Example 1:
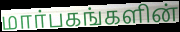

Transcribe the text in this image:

மார்பகங்களின்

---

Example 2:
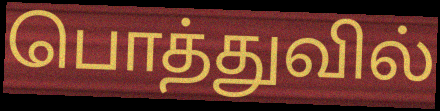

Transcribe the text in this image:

பொத்துவில்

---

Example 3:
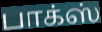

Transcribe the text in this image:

பாக்ஸ்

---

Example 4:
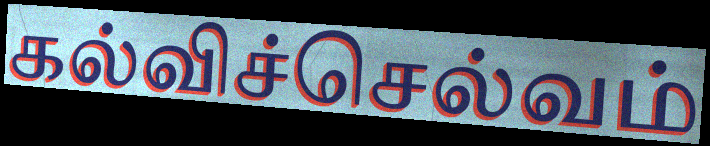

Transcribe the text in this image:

கல்விச்செல்வம்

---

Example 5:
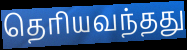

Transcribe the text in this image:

தெரியவந்தது